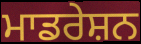
ਮਾਡਰੇਸ਼ਨ